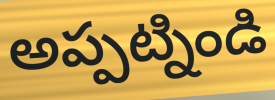
అప్పట్నిండి